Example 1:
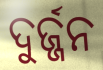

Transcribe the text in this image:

ଦୁର୍ଜ୍ଜନ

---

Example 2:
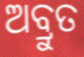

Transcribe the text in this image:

ଅବ୍ରୁତ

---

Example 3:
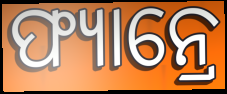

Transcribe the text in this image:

ଫ୍ୟାନ୍ରେ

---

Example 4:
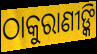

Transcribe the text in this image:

ଠାକୁରାଣୀଙ୍କି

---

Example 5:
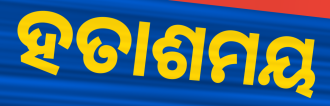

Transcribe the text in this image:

ହତାଶମୟ